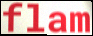
flam